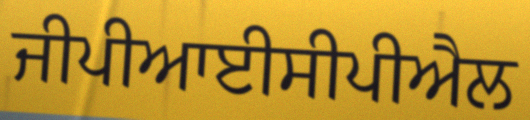
ਜੀਪੀਆਈਸੀਪੀਐਲ